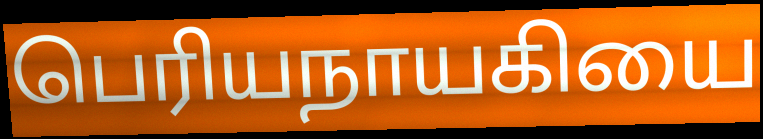
பெரியநாயகியை